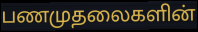
பணமுதலைகளின்